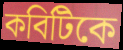
কবিটিকে